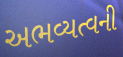
અભવ્યત્વની